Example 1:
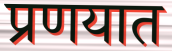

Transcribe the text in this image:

प्रणयात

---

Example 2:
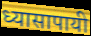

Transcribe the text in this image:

ध्यासापायी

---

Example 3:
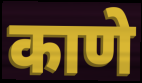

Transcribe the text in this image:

काणे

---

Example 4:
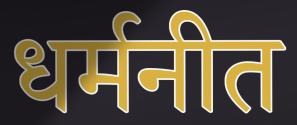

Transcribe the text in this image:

धर्मनीत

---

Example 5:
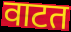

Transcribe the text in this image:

वाटत